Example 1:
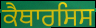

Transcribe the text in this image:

ਕੈਥਾਰਸਿਸ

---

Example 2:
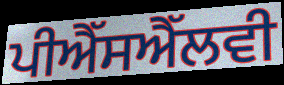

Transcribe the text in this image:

ਪੀਐੱਸਐੱਲਵੀ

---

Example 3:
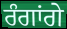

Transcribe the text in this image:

ਰੰਗਾਂਗੇ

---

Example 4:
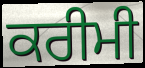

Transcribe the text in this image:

ਕਰੀਮੀ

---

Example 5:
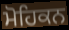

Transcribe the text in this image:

ਮੋਹਿਕਨ